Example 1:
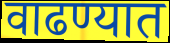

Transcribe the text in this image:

वाढण्यात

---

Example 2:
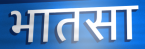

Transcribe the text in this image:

भातसा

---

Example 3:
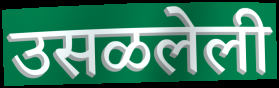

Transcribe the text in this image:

उसळलेली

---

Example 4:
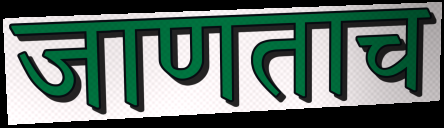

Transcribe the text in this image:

जाणताच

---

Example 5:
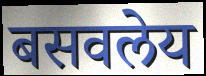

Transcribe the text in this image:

बसवलेय